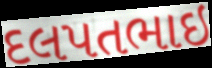
દલપતભાઇ